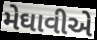
મેઘાવીએ